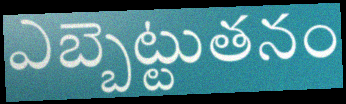
ఎబ్బెట్టుతనం